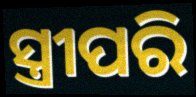
ସ୍ତ୍ରୀପରି